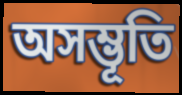
অসম্ভূতি